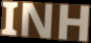
INH